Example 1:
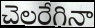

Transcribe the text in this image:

చెలరేగినా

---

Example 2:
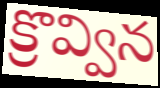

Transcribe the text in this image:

క్రొవ్విన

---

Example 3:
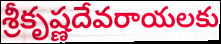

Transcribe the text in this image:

శ్రీకృష్ణదేవరాయలకు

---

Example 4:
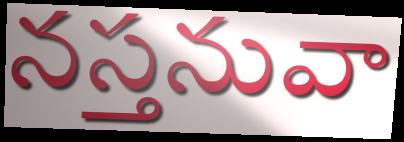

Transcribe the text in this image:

నస్తనువా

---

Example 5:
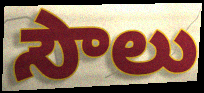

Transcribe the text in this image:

సౌలు